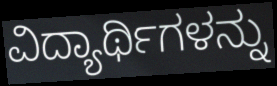
ವಿದ್ಯಾರ್ಥಿಗಳನ್ನು